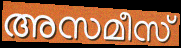
അസമീസ്